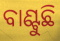
ବାଣ୍ଟୁଛି